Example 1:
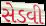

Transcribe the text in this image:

સેડવી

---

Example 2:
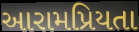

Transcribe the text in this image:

આરામપ્રિયતા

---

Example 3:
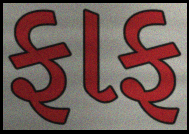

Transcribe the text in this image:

ફાફ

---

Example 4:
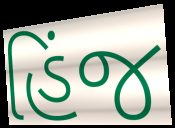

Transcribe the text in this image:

હિંજ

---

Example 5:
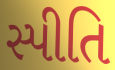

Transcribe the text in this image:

સ્પીતિ